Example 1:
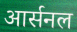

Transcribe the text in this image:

आर्सनल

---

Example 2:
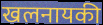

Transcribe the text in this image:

खलनायकी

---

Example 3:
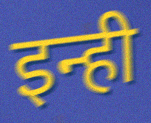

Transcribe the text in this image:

इन्ही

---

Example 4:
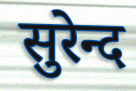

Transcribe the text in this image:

सुरेन्द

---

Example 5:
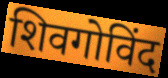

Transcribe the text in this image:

शिवगोविंद